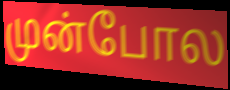
முன்போல